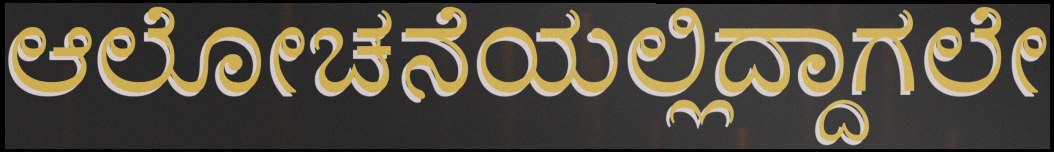
ಆಲೋಚನೆಯಲ್ಲಿದ್ದಾಗಲೇ